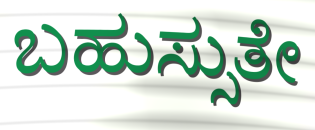
ಬಹುಸ್ಸುತೇ